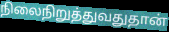
நிலைநிறுத்துவதுதான்